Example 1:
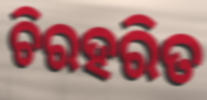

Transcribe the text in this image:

ଚିରହରିତ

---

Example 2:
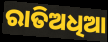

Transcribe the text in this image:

ରାତିଅଧିଆ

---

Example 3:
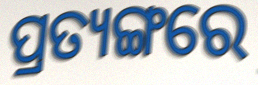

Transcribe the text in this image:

ପ୍ରତ୍ୟଙ୍ଗରେ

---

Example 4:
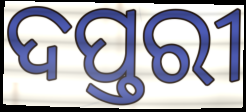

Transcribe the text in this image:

ଦପ୍ତରୀ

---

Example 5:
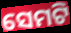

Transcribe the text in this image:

ସେମଟି